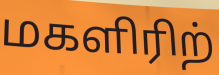
மகளிரிற்